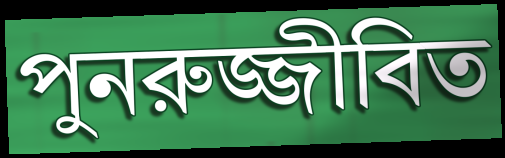
পুনরুজ্জীবিত